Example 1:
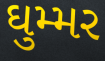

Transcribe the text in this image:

ઘુમ્મર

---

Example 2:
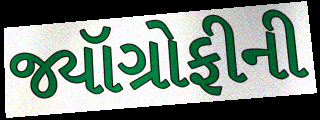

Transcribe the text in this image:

જ્યૉગ્રોફીની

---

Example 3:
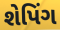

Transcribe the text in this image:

શેપિંગ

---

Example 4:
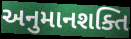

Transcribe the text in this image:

અનુમાનશક્તિ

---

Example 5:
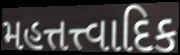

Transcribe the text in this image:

મહત્તત્ત્વાદિક